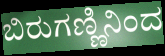
ಬಿರುಗಣ್ಣಿನಿಂದ